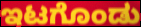
ಇಟಗೊಂಡು